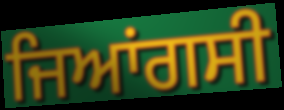
ਜਿਆਂਗਸੀ